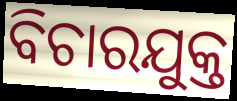
ବିଚାରଯୁକ୍ତ